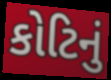
કોટિનું